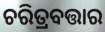
ଚରିତ୍ରବତ୍ତାର